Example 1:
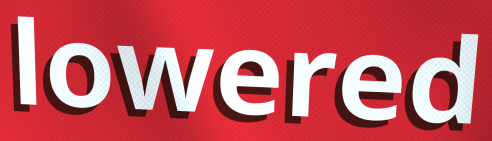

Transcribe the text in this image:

lowered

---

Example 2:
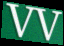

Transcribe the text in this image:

VV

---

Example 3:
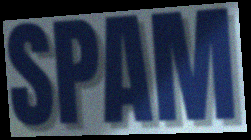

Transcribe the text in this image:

SPAM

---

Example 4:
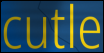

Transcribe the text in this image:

cutle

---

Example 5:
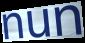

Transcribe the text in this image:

nun